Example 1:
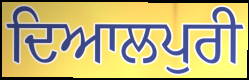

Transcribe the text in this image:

ਦਿਆਲਪੁਰੀ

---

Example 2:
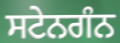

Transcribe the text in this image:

ਸਟੇਨਗੰਨ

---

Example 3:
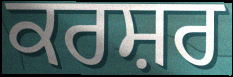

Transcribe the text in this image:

ਕਰਸ਼ਰ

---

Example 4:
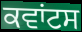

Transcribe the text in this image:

ਕਵਾਂਟਸ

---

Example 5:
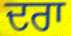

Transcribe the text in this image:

ਦਰਾ